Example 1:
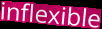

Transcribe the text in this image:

inflexible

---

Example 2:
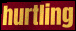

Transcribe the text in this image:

hurtling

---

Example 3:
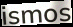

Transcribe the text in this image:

ismos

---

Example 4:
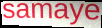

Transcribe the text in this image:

samaye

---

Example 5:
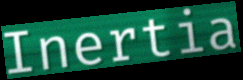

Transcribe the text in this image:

Inertia